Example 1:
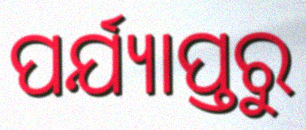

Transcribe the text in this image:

ପର୍ଯ୍ୟାପ୍ତରୁ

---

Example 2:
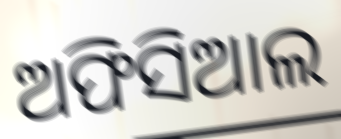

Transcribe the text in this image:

ଅଫିସିଆଲ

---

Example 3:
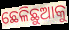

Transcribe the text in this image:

ଛେଳିଛୁଆକୁ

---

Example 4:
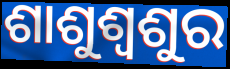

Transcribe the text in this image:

ଶାଶୁଶ୍ୱଶୁର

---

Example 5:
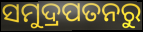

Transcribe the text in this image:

ସମୁଦ୍ରପତନରୁ